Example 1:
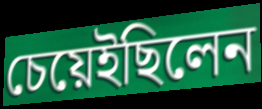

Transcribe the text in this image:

চেয়েইছিলেন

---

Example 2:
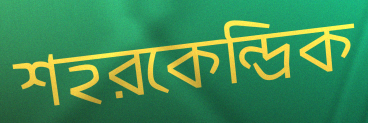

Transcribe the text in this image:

শহরকেন্দ্রিক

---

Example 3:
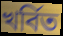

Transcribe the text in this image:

খর্বিত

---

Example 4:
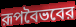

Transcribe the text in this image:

রূপবৈভবের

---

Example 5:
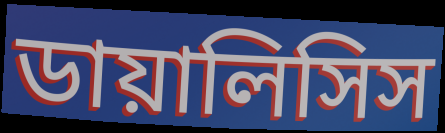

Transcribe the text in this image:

ডায়ালিসিস